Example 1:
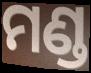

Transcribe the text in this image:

ମଣ୍ଡ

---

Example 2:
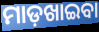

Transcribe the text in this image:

ମାଡ଼ଖାଇବା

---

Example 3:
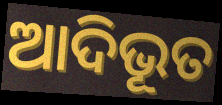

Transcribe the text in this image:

ଆଦିଭୂତ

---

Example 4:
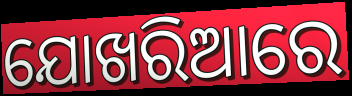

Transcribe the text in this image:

ଯୋଖରିଆରେ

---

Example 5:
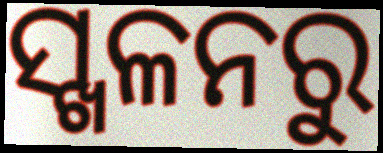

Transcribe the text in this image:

ସ୍ଖଳନରୁ